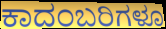
ಕಾದಂಬರಿಗಳೂ